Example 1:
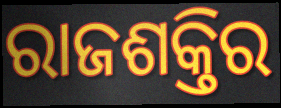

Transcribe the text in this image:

ରାଜଶକ୍ତିର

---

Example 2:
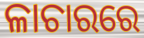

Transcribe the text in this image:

ଳାଚାରରେ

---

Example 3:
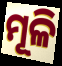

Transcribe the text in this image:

ମୂଳି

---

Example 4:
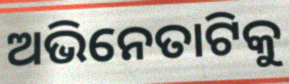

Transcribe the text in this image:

ଅଭିନେତାଟିକୁ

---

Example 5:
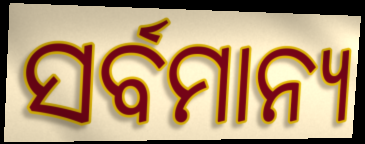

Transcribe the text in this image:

ସର୍ବମାନ୍ୟ